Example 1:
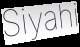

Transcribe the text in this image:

Siyahi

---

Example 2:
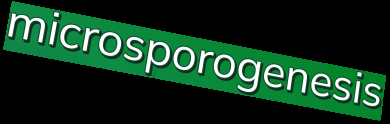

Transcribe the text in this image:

microsporogenesis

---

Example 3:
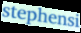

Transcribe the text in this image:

stephensi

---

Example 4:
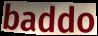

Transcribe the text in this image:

baddo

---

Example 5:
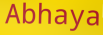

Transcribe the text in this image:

Abhaya